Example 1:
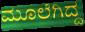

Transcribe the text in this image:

ಮೂಲೆಗಿದ್ದ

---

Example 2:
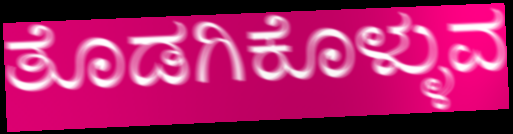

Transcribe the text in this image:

ತೊಡಗಿಕೊಳ್ಳುವ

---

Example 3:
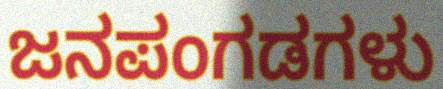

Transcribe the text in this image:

ಜನಪಂಗಡಗಳು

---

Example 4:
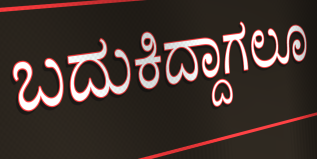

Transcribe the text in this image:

ಬದುಕಿದ್ದಾಗಲೂ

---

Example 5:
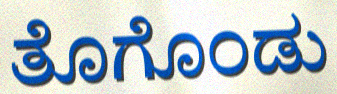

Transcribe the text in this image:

ತೊಗೊಂಡು